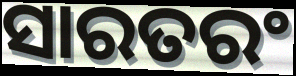
ସାରତରଂ